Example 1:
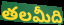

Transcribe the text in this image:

తలమీది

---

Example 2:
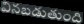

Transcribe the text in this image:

వినబడుతుంది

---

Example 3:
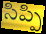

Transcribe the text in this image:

సిప్పి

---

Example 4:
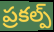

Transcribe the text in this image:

ప్రకల్ప్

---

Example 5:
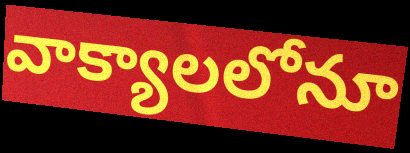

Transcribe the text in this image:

వాక్యాలలోనూ